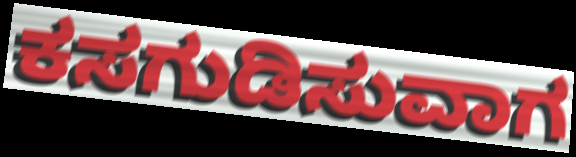
ಕಸಗುಡಿಸುವಾಗ